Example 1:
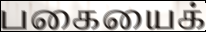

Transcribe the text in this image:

பகையைக்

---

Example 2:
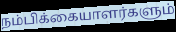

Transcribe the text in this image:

நம்பிக்கையாளர்களும்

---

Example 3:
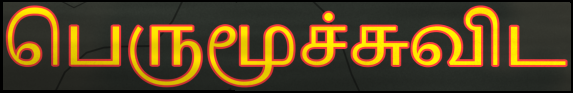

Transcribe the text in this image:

பெருமூச்சுவிட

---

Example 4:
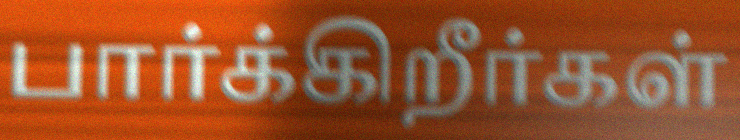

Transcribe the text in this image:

பார்க்கிறீர்கள்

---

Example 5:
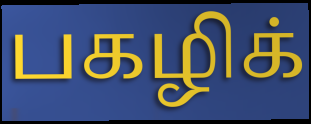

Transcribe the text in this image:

பகழிக்